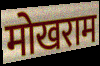
मोखराम